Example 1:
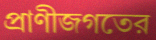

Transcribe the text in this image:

প্রাণীজগতের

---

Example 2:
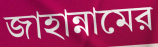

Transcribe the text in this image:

জাহান্নামের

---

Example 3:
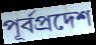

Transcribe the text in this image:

পূর্বপ্রদেশ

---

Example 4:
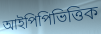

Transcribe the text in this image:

আইপিপিভিত্তিক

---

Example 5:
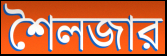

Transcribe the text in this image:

শৈলজার